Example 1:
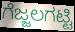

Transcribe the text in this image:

ಗೆಜ್ಜಲಗಟ್ಟಿ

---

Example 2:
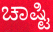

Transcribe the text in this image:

ಚಾಷ್ಟಿ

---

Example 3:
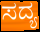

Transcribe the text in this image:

ಸದ್ಯ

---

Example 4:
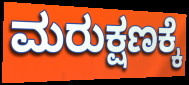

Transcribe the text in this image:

ಮರುಕ್ಷಣಕ್ಕೆ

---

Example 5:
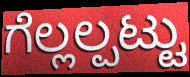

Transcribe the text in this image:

ಗೆಲ್ಲಲ್ಪಟ್ಟು